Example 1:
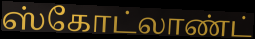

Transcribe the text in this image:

ஸ்கோட்லாண்ட்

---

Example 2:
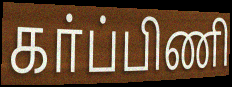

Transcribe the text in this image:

கர்ப்பிணி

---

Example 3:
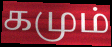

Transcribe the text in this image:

கமும்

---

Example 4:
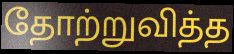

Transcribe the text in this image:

தோற்றுவித்த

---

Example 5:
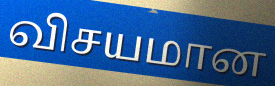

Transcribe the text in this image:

விசயமான